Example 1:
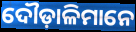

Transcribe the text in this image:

ଦୌଡ଼ାଳିମାନେ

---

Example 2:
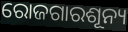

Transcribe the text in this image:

ରୋଜଗାରଶୂନ୍ୟ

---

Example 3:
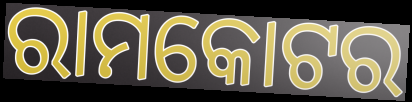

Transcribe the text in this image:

ରାମକୋଟର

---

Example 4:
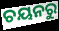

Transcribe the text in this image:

ଚୟନରୁ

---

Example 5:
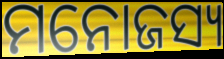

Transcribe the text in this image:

ମନୋଜସ୍ୟ